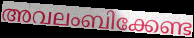
അവലംബിക്കേണ്ട